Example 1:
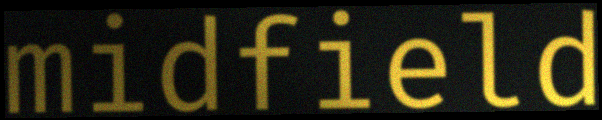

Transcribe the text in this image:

midfield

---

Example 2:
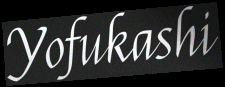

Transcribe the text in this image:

Yofukashi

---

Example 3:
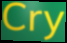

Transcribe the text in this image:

Cry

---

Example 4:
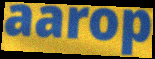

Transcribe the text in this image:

aarop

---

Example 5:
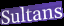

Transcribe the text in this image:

Sultans